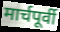
मार्चपूर्वी